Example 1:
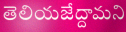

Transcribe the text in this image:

తెలియజేద్దామని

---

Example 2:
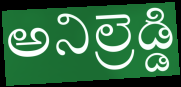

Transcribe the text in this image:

అనిల్రెడ్డి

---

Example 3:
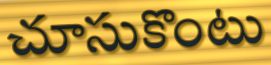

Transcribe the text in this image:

చూసుకొంటు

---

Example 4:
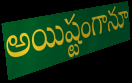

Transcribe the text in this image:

అయిష్టంగానూ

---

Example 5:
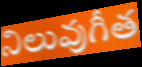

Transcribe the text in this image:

నిలువుగీత